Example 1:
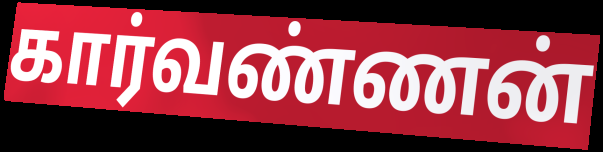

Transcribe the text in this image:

கார்வண்ணன்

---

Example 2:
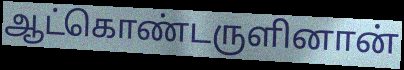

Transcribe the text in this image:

ஆட்கொண்டருளினான்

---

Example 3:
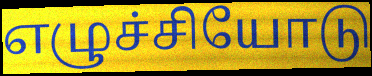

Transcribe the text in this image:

எழுச்சியோடு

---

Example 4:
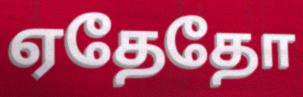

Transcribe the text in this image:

ஏதேதோ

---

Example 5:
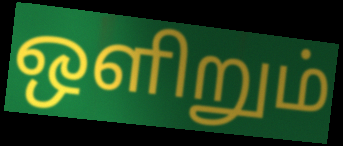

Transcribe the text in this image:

ஒளிறும்